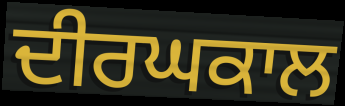
ਦੀਰਘਕਾਲ